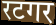
रटगर